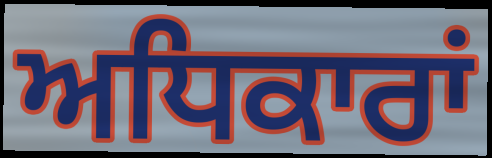
ਅਧਿਕਾਰਾਂ